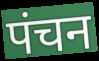
पंचन